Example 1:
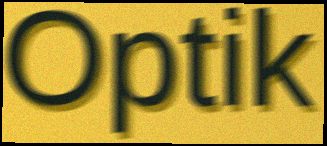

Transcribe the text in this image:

Optik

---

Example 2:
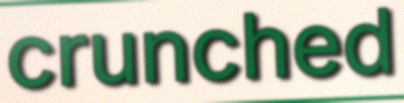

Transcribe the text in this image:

crunched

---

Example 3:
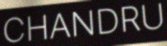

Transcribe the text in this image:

CHANDRU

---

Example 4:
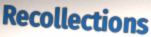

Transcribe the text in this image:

Recollections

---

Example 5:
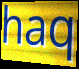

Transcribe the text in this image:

haq